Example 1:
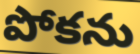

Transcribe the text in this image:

పోకను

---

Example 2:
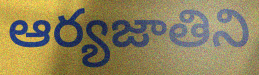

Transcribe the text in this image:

ఆర్యజాతిని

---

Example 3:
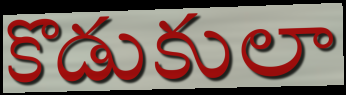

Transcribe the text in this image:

కొడుకులా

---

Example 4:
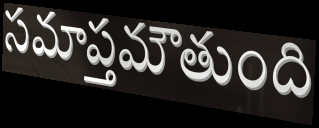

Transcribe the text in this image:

సమాప్తమౌతుంది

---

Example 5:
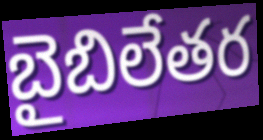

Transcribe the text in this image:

బైబిలేతర